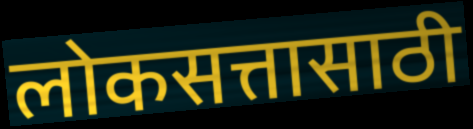
लोकसत्तासाठी